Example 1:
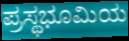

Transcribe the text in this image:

ಪ್ರಸ್ಥಭೂಮಿಯ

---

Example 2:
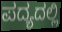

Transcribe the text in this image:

ಪದ್ಯದಲ್ಲಿ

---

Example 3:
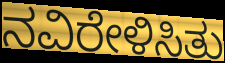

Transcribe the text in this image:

ನವಿರೇಳಿಸಿತು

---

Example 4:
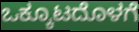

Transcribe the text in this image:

ಒಕ್ಕೂಟದೊಳಗೆ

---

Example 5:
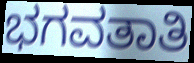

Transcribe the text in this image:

ಭಗವತಾತಿ